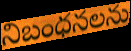
నిబంధనలను